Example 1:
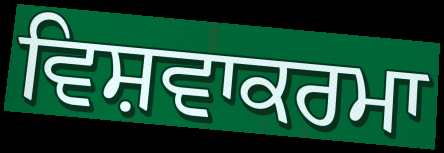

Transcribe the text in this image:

ਵਿਸ਼ਵਾਕਰਮਾ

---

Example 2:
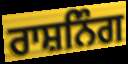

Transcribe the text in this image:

ਰਾਸ਼ਨਿੰਗ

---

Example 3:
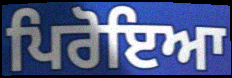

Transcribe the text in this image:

ਪਿਰੋਇਆ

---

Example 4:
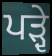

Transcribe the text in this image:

ਪੜ੍ਦੇ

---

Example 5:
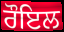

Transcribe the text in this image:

ਰੌਇਲ